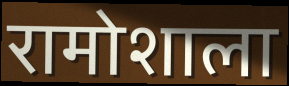
रामोशाला